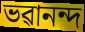
ভৱানন্দ